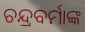
ଚନ୍ଦ୍ରବର୍ମାଙ୍କ